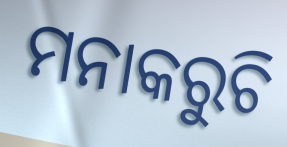
ମନାକରୁଚି